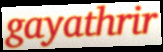
gayathrir